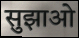
सुझाओ